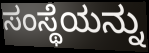
ಸಂಸ್ಥೆಯನ್ನು